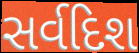
સર્વદિશ